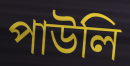
পাউলি